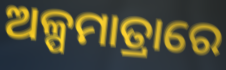
ଅଳ୍ପମାତ୍ରାରେ